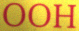
OOH